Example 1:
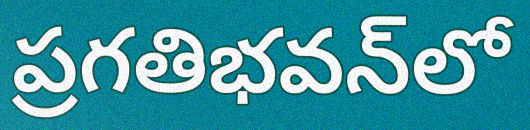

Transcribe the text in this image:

ప్రగతిభవన్‌లో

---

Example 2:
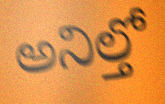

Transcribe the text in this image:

అనిల్తో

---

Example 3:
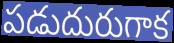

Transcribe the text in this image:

పడుదురుగాక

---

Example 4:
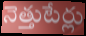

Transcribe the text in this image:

నెత్తుటేర్లు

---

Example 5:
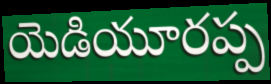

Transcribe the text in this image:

యెడియూరప్ప